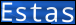
Estas